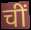
चीं